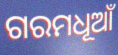
ଗରମଧୂଆଁ